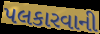
પલકારવાની